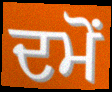
ਦਮੋਂ